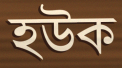
হউক